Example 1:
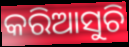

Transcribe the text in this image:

କରିଆସୁଚି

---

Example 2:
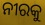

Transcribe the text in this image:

ନୀରକୁ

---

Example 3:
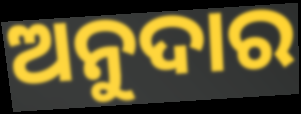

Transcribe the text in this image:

ଅନୁଦାର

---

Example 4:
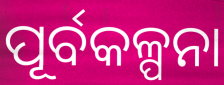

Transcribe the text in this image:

ପୂର୍ବକଳ୍ପନା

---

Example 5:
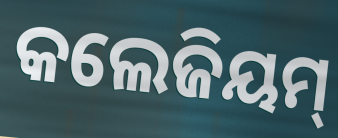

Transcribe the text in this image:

କଲେଜିୟମ୍